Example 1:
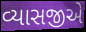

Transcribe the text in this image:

વ્યાસજીએ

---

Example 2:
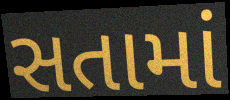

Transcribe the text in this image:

સતામાં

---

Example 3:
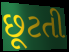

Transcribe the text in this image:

છૂટતી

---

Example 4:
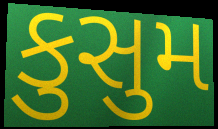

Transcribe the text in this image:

કુસુમ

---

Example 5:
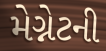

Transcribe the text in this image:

મેગ્નેટની